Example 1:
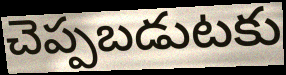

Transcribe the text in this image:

చెప్పబడుటకు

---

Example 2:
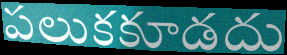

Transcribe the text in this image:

పలుకకూడదు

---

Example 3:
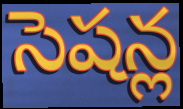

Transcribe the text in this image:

సెషన్ల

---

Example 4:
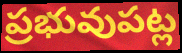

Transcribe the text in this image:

ప్రభువుపట్ల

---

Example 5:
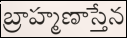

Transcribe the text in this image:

బ్రాహ్మణాస్తేన